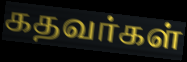
கதவர்கள்